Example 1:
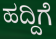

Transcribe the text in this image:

ಹದ್ದಿಗೆ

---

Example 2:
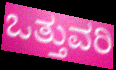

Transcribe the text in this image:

ಒತ್ತುವರಿ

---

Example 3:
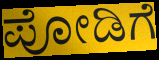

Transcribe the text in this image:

ಪೋಡಿಗೆ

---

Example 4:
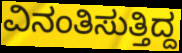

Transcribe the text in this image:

ವಿನಂತಿಸುತ್ತಿದ್ದ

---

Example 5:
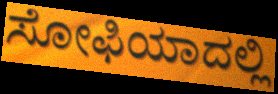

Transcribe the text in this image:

ಸೋಫಿಯಾದಲ್ಲಿ